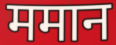
ममान